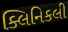
ક્લિનિકલી